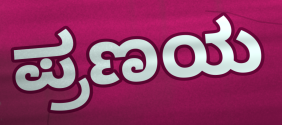
ಪ್ರಣಯ